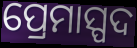
ପ୍ରେମାସ୍ପଦ